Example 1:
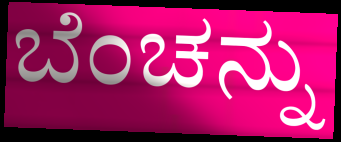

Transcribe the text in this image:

ಬೆಂಚನ್ನು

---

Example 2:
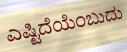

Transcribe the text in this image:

ಎಷ್ಟಿದೆಯೆಂಬುದು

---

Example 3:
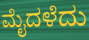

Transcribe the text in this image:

ಮೈದಳೆದು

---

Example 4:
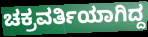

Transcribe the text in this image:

ಚಕ್ರವರ್ತಿಯಾಗಿದ್ದ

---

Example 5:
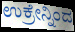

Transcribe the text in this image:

ಉಕ್ರೇನ್ನಿಂದ